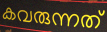
കവരുന്നത്